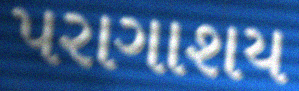
પરાગાશય